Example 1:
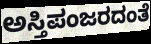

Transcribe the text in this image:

ಅಸ್ತಿಪಂಜರದಂತೆ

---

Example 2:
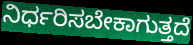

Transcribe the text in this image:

ನಿರ್ಧರಿಸಬೇಕಾಗುತ್ತದೆ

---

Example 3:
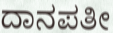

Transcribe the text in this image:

ದಾನಪತೀ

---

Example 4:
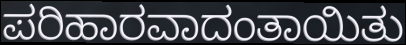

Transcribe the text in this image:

ಪರಿಹಾರವಾದಂತಾಯಿತು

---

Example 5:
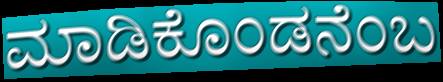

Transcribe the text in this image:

ಮಾಡಿಕೊಂಡನೆಂಬ